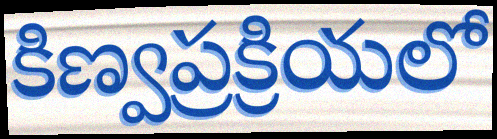
కిణ్వప్రక్రియలో